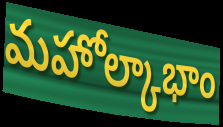
మహోల్కాభాం